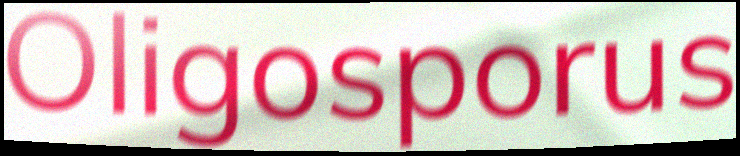
Oligosporus